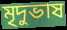
মৃদুভাষ